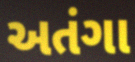
અતંગા